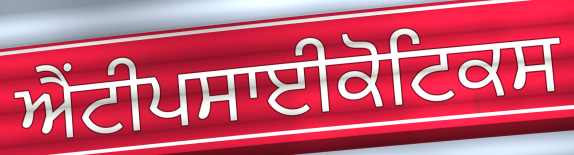
ਐਂਟੀਪਸਾਈਕੋਟਿਕਸ